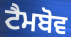
ਟੈਮਬੋਵ